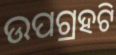
ଉପଗ୍ରହଟି